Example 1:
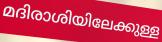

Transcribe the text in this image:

മദിരാശിയിലേക്കുള്ള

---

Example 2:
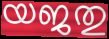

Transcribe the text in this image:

യജതു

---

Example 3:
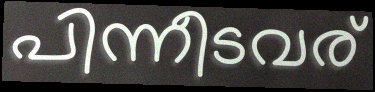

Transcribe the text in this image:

പിന്നീടവര്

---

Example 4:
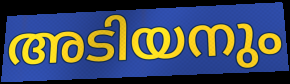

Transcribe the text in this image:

അടിയനും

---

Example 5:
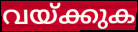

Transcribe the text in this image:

വയ്ക്കുക